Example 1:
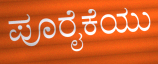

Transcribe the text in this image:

ಪೂರೈಕೆಯು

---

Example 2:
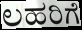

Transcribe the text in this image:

ಲಹರಿಗೆ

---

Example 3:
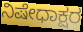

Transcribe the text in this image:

ನಿಷೇಧಾಕ್ಷರ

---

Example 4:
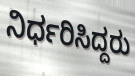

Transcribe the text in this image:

ನಿರ್ಧರಿಸಿದ್ದರು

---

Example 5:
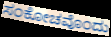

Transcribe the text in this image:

ಸಂಕೋಚವೊಂದು